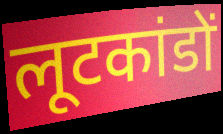
लूटकांडों